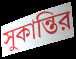
সুকান্তির